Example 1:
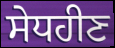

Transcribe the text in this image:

ਸੇਧਹੀਣ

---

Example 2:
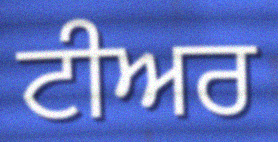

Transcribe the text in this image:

ਟੀਅਰ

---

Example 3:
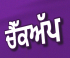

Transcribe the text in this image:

ਚੈੱਕਅੱਪ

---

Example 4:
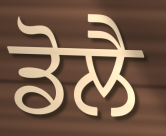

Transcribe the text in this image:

ਡੋਲੈ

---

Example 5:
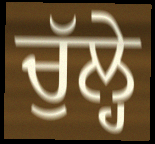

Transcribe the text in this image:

ਚੁੱਲ੍ਹੇ